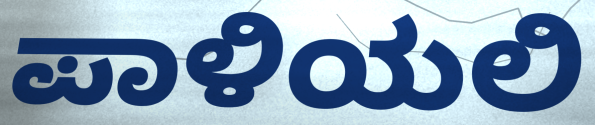
ಪಾಳಿಯಲಿ